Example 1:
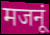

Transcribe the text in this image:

मजनूं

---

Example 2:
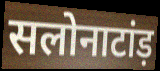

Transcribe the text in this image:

सलोनाटांड़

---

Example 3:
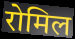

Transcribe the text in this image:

रोमिल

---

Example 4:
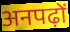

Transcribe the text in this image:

अनपढ़ों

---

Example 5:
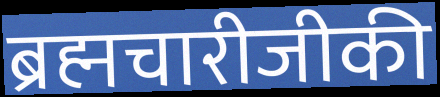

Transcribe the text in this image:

ब्रह्मचारीजीकी